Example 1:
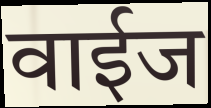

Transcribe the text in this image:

वाईज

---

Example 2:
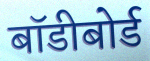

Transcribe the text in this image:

बॉडीबोर्ड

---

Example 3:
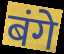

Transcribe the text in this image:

बंगे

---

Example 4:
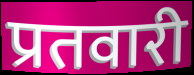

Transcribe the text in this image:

प्रतवारी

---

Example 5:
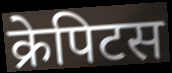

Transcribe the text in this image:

क्रेपिटस